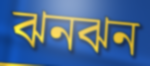
ঝনঝন